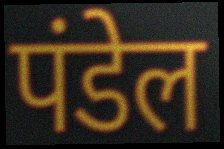
पंडेल